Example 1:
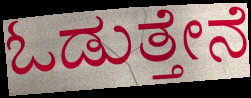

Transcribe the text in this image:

ಓಡುತ್ತೇನೆ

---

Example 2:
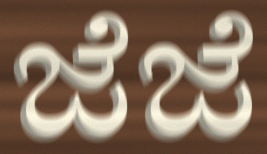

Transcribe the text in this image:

ಜೆಜೆ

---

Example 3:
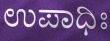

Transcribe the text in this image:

ಉಪಾಧಿಃ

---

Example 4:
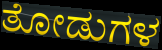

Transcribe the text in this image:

ತೋಡುಗಳ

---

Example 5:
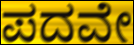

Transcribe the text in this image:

ಪದವೇ